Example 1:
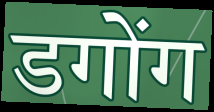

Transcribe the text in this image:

डगोंग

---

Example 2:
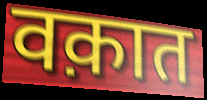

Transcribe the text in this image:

वक़ात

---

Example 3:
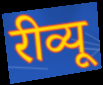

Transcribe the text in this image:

रीव्यू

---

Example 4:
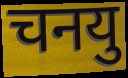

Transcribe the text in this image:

चनयु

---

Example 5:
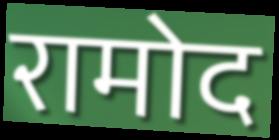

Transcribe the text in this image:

रामोद